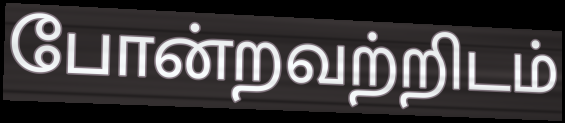
போன்றவற்றிடம்